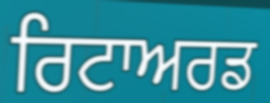
ਰਿਟਾਅਰਡ